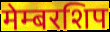
मेम्बरशिप